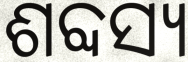
ଶବ୍ଦସ୍ଯ